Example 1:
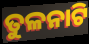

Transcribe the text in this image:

ତୁଳନାଟି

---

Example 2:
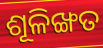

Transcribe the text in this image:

ଶୂଳିଙ୍ଖତ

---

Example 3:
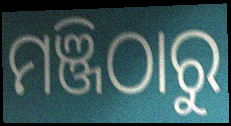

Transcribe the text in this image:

ମଞ୍ଜିଠାରୁ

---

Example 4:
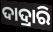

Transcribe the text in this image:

ଦାଦ୍ରାରି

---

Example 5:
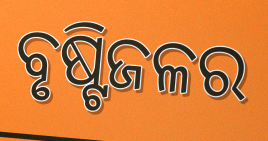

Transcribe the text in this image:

ବୃଷ୍ଟିଜଳର